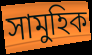
সামুহিক